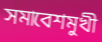
সমাবেশমুখী